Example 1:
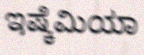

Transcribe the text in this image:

ಇಷ್ಕೆಮಿಯಾ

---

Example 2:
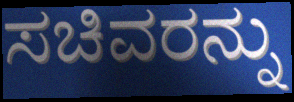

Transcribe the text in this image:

ಸಚಿವರನ್ನು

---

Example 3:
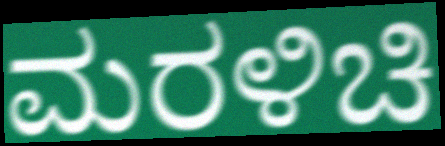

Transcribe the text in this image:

ಮರಳಿಚಿ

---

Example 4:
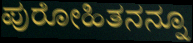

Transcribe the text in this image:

ಪುರೋಹಿತನನ್ನೂ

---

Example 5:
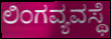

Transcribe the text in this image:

ಲಿಂಗವ್ಯವಸ್ಥೆ